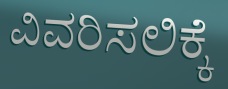
ವಿವರಿಸಲಿಕ್ಕೆ